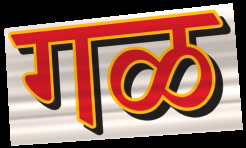
गळ